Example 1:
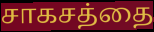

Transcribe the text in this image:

சாகசத்தை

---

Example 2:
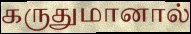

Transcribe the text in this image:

கருதுமானால்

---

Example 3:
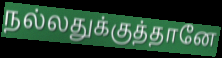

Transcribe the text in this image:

நல்லதுக்குத்தானே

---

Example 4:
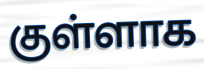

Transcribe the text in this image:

குள்ளாக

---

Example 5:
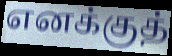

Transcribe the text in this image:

எனக்குத்